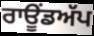
ਰਾਊਂਡਅੱਪ